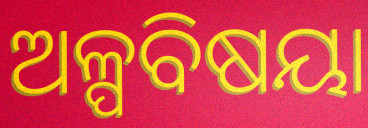
ଅଳ୍ପବିଷୟା